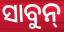
ସାବୁନ୍